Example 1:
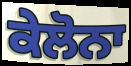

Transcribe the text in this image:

ਕੇਲੋਨਾ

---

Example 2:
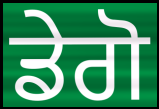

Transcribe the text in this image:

ਡੇਗੋ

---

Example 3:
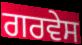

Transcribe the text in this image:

ਗਰਵੇਸ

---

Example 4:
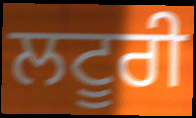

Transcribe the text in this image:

ਲਟੂਰੀ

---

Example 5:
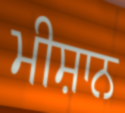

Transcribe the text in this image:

ਮੀਸ਼ਾਨ